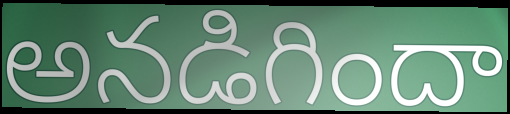
అనడిగిందా